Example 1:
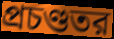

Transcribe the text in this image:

প্রচণ্ডতর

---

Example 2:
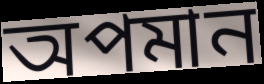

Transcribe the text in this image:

অপমান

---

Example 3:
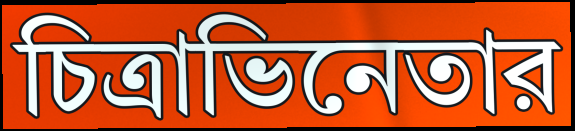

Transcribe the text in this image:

চিত্রাভিনেতার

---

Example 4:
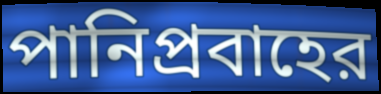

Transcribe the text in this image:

পানিপ্রবাহের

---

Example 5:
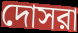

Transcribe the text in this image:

দোসরা